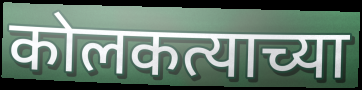
कोलकत्याच्या